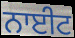
ਨਾਈਟ